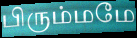
பிரும்மமே